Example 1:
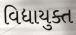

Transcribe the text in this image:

વિદ્યાયુક્ત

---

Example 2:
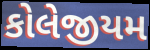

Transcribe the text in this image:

કોલેજીયમ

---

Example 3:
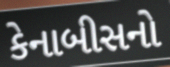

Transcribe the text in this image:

કેનાબીસનો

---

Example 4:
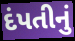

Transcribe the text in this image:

દંપતીનું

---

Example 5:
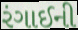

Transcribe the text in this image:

રંગાઈની